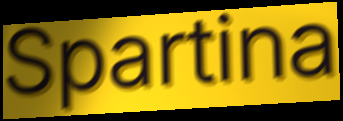
Spartina